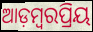
ଆଡ଼ମ୍ବରପ୍ରିୟ